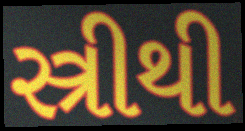
સ્ત્રીથી